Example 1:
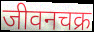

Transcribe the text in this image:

जीवनचक्र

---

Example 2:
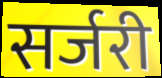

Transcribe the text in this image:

सर्जरी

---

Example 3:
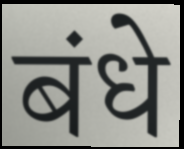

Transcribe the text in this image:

बंधे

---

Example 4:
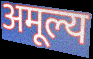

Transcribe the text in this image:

अमूल्‍य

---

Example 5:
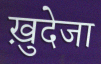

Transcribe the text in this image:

ख़ुदेजा